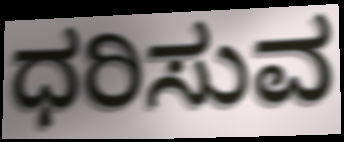
ಧರಿಸುವ